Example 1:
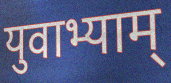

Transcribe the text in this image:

युवाभ्याम्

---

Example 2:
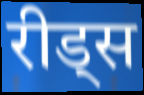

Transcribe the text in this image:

रीड्स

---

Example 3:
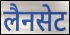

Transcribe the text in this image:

लैनसेट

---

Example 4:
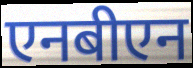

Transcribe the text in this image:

एनबीएन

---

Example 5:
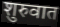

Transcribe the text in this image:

शुरुवात